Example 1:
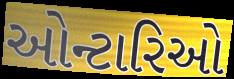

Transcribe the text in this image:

ઓન્ટારિઓ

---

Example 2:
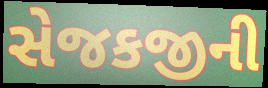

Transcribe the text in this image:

સેજકજીની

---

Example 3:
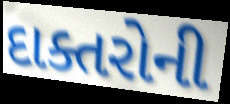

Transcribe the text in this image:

દાક્તરોની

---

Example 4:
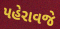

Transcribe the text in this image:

પહેરાવજે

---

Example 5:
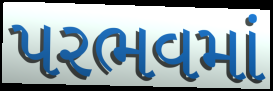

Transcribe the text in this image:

પરભવમાં